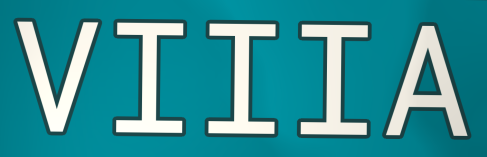
VIIIA